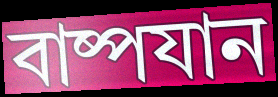
বাষ্পযান